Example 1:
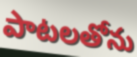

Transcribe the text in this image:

పాటలతోను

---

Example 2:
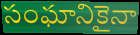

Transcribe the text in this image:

సంఘానికైనా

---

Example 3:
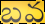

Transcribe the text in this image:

బవ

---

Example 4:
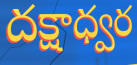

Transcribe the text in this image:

దక్షాధ్వర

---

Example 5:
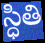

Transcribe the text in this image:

స్ధితి